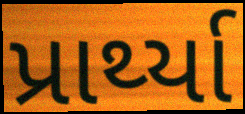
પ્રાર્થ્યા